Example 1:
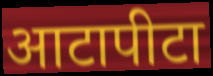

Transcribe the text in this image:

आटापीटा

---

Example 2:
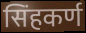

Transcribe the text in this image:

सिंहकर्ण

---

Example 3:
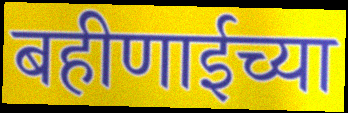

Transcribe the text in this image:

बहीणाईच्या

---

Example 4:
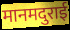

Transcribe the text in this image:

मानमदुराई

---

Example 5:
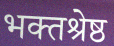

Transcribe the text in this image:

भक्तश्रेष्ठ